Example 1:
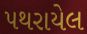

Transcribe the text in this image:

પથરાયેલ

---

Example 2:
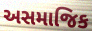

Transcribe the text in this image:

અસમાજિક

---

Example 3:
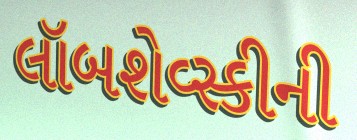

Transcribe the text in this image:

લૉબશેવ્સ્કીની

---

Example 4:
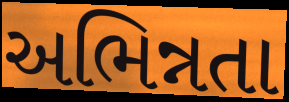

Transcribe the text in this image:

અભિન્નતા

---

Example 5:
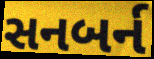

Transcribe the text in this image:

સનબર્ન